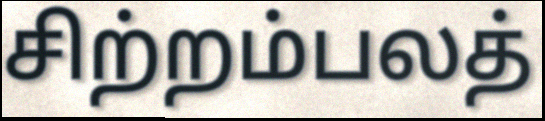
சிற்றம்பலத்